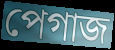
পেগাজ